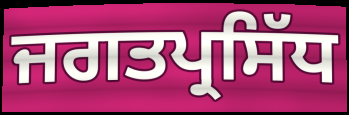
ਜਗਤਪ੍ਰਸਿੱਧ